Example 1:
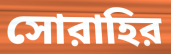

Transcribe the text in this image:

সোরাহির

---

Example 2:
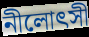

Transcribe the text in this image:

নীলোৎসী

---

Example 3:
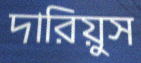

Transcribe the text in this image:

দারিয়ুস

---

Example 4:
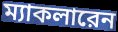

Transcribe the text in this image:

ম্যাকলারেন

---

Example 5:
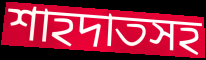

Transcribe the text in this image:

শাহদাতসহ